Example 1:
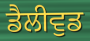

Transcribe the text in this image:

ਡੈਲੀਵੁਡ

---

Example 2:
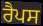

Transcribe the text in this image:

ਰੈਪਸ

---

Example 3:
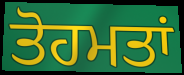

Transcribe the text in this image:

ਤੋਹਮਤਾਂ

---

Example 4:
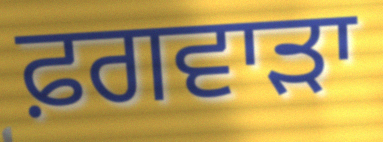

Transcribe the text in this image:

ਫ਼ਗਵਾੜਾ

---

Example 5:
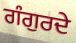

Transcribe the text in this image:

ਗੰਗੁਰਦੇ